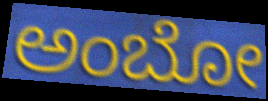
ಅಂಬೋ